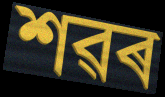
শৱৰ